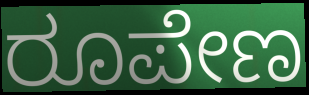
ರೂಪೇಣ